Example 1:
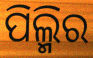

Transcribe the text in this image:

ପିଲ୍ମିର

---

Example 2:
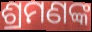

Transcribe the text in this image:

ଶ୍ରମଣଙ୍କ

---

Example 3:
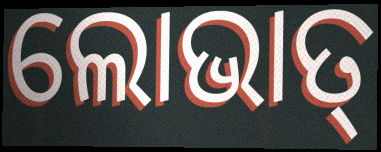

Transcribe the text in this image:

ଲୋଭାତ୍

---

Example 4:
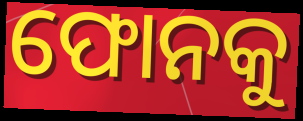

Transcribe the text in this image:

ଫୋନକୁ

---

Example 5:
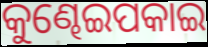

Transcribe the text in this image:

କୁଣ୍ଢେଇପକାଇ